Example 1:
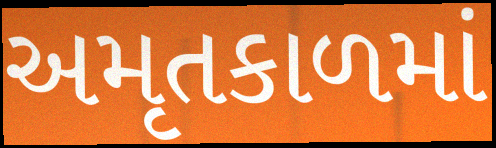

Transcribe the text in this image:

અમૃતકાળમાં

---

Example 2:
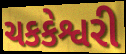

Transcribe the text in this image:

ચકકેશ્વરી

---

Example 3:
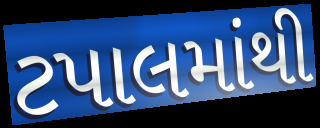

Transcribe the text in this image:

ટપાલમાંથી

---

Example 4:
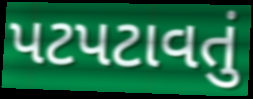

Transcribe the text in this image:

પટપટાવતું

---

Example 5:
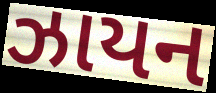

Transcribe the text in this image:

ઝાયન